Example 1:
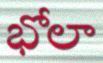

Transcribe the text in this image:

భోలా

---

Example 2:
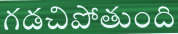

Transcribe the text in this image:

గడచిపోతుంది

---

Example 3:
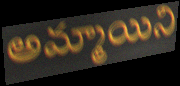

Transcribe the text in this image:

అమ్మాయిని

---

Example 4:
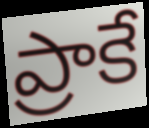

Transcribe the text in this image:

ప్రాకే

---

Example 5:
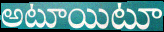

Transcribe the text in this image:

అటూయిటూ